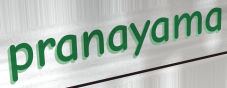
pranayama